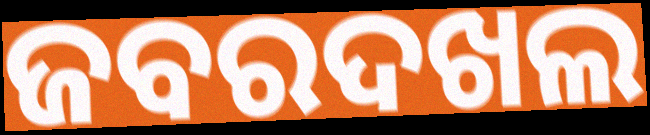
ଜବରଦଖଲ